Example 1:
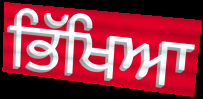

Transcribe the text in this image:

ਭਿੱਖਿਆ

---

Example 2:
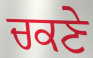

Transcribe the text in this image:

ਚਕਣੇ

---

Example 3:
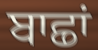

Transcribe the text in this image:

ਬਾਛਾਂ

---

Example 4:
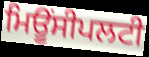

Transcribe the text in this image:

ਮਿਊਂਸੀਪਲਟੀ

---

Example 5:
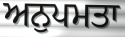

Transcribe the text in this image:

ਅਨੁਪਮਤਾ